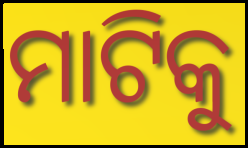
ମାଟିକୁ